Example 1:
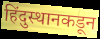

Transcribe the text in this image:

हिंदुस्थानकडून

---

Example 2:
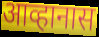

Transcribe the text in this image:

आव्हानास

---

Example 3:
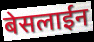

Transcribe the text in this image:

बेसलाईन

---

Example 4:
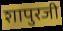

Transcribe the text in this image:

शापुरजी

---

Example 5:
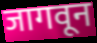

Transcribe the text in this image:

जागवून